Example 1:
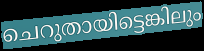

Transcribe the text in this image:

ചെറുതായിട്ടെങ്കിലും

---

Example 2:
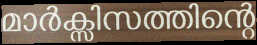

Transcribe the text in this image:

മാർക്സിസത്തിന്റെ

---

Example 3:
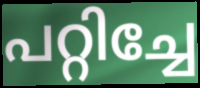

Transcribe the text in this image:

പറ്റിച്ചേ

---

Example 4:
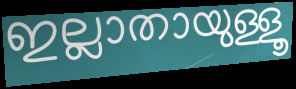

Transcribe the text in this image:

ഇല്ലാതായുള്ളൂ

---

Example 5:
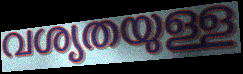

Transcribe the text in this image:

വശ്യതയുള്ള